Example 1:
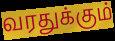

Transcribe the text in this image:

வரதுக்கும்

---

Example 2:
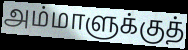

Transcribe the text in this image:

அம்மாளுக்குத்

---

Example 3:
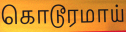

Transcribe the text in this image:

கொடூரமாய்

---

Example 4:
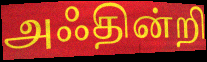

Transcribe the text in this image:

அஃதின்றி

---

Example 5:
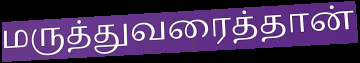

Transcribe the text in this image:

மருத்துவரைத்தான்